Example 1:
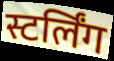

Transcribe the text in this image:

स्टर्लिंग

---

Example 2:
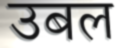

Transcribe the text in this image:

उबल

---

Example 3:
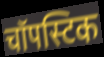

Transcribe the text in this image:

चॉपस्टिक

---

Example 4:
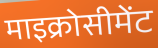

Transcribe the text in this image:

माइक्रोसीमेंट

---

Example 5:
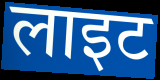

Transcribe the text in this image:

लाइट